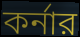
কর্নার